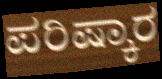
ಪರಿಷ್ಕಾರ